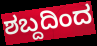
ಶಬ್ದದಿಂದ